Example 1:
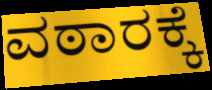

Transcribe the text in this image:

ವಠಾರಕ್ಕೆ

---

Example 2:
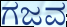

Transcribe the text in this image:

ಗಜವ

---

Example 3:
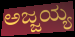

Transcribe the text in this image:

ಅಜ್ಜಯ್ಯ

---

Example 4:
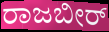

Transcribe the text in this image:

ರಾಜಬೀರ್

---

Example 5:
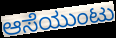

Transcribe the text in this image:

ಆಸೆಯುಂಟು